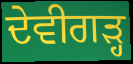
ਦੇਵੀਗੜ੍ਹ